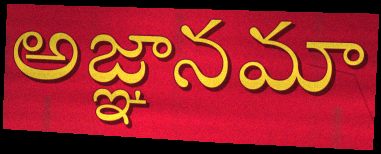
అజ్ఞానమా